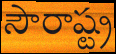
సౌరాష్ట్ర